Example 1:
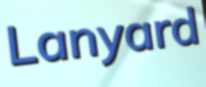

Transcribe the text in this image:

Lanyard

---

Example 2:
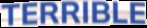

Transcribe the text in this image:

TERRIBLE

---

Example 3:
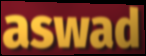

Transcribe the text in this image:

aswad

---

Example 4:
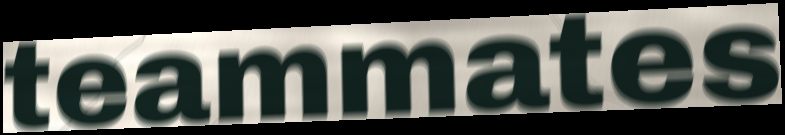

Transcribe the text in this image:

teammates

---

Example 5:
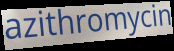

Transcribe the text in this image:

azithromycin